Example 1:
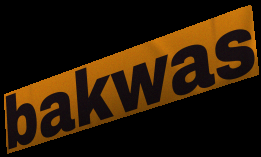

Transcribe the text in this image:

bakwas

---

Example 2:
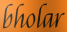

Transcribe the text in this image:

bholar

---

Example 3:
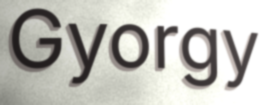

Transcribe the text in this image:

Gyorgy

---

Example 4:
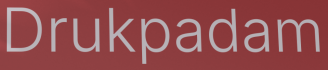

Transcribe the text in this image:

Drukpadam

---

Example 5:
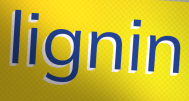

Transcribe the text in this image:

lignin